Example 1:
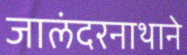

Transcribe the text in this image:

जालंदरनाथाने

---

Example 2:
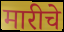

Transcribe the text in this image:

मारीचे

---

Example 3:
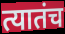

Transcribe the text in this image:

त्यातंच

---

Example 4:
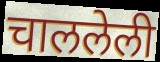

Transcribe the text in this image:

चाललेली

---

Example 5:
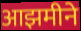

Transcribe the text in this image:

आझमीने